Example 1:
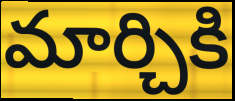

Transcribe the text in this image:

మార్చికి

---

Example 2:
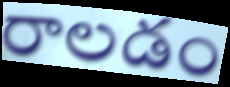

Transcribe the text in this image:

రాలడం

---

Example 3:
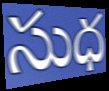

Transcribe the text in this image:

సుధ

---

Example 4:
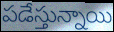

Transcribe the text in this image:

పడేస్తున్నాయి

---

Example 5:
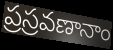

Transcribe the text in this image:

ప్రస్రవణానాం